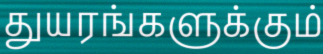
துயரங்களுக்கும்